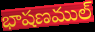
భాషణముల్